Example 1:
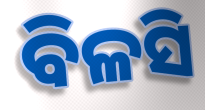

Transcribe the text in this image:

ବିଳସି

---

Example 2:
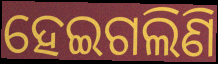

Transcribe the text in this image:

ହେଇଗଲିଣି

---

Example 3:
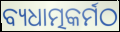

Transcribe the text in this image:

ବ୍ୟଧାତ୍ମକର୍ମଠ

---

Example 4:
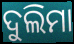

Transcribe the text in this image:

ଦୁଲିମା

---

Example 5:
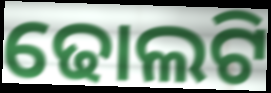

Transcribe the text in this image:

ଢୋଲଟି